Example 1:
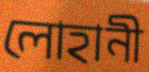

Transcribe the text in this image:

লোহানী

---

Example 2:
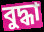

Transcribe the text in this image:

বুদ্ধা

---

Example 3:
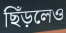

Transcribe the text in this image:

ছিঁড়লেও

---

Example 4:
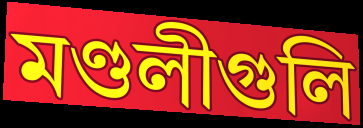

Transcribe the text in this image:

মণ্ডলীগুলি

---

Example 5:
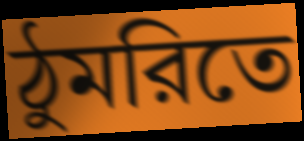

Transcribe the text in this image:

ঠুমরিতে